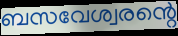
ബസവേശ്വരന്റെ